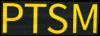
PTSM